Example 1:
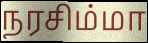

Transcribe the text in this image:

நரசிம்மா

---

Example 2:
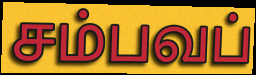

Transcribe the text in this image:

சம்பவப்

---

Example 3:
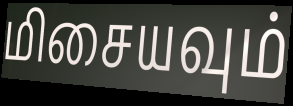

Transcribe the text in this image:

மிசையவும்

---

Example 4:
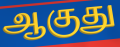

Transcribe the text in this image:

ஆகுது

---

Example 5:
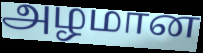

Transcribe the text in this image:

அழமான